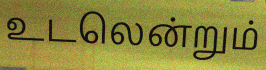
உடலென்றும்